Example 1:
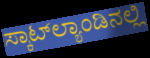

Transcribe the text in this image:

ಸ್ಕಾಟ್‌ಲ್ಯಾಂಡಿನಲ್ಲಿ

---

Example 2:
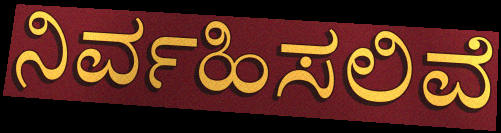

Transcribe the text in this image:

ನಿರ್ವಹಿಸಲಿವೆ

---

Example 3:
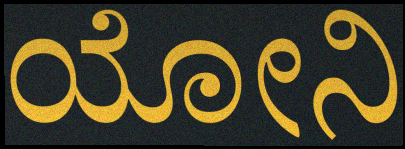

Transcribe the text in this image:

ಯೋನಿ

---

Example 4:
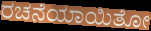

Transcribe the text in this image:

ರಚನೆಯಾಯಿತೋ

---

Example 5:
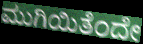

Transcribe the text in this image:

ಮುಗಿಯಿತೆಂದೇ